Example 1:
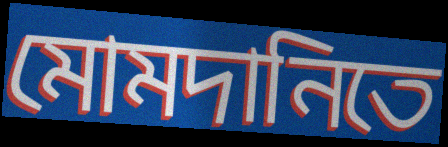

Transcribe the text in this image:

মোমদানিতে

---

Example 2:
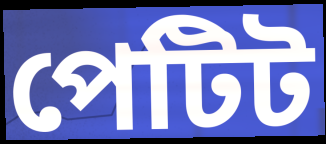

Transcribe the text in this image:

পেটিট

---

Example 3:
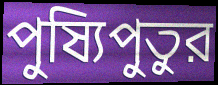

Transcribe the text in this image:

পুষ্যিপুতুর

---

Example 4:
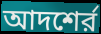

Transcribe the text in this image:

আদশের্র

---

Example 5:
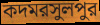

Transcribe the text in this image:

কদমরসুলপুর